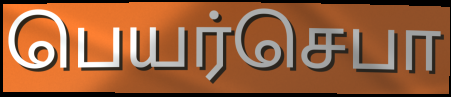
பெயர்செபா